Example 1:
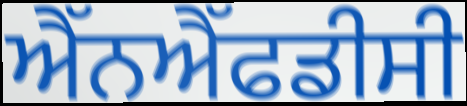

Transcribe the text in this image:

ਐੱਨਐੱਫਡੀਸੀ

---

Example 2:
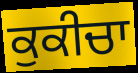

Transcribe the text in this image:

ਕੁਕੀਚਾ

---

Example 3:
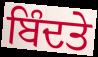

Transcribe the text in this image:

ਬਿੰਦਤੇ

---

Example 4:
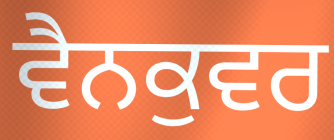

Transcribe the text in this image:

ਵੈਨਕੁਵਰ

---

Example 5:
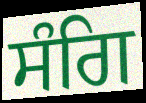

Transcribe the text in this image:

ਸੰਗਿ